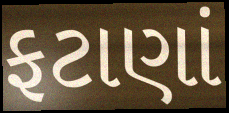
ફટાણાં